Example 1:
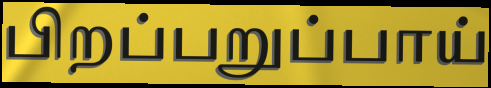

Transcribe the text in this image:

பிறப்பறுப்பாய்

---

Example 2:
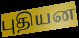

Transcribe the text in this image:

புதியன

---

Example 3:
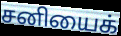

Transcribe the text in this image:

சனியைக்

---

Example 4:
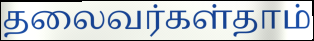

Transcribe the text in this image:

தலைவர்கள்தாம்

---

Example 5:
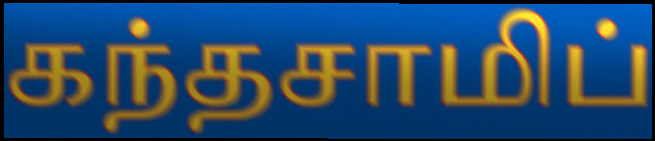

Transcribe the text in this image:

கந்தசாமிப்